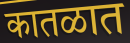
कातळात